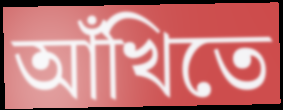
আঁখিতে